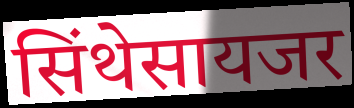
सिंथेसायजर